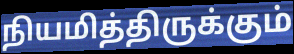
நியமித்திருக்கும்